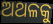
ଅଥଳକୁ